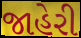
જાહેરી